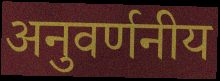
अनुवर्णनीय